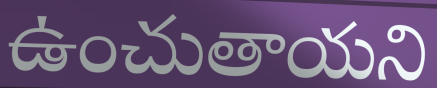
ఉంచుతాయని